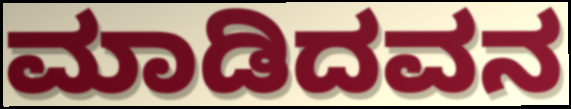
ಮಾಡಿದವನ